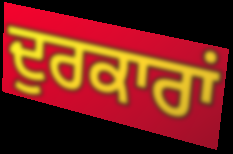
ਦੁਰਕਾਰਾਂ